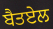
ਬੈਤਏਲ